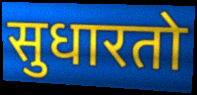
सुधारतो